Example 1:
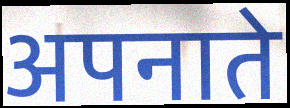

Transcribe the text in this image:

अपनाते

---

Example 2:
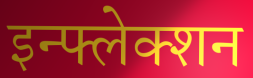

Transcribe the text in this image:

इन्फ्लेक्शन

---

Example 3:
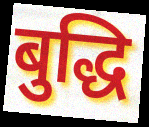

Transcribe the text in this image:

बुद्धि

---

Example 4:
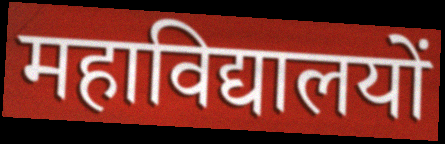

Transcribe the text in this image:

महाविद्यालयों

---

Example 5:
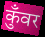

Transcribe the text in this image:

कुँवर